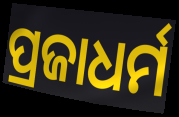
ପ୍ରଜାଧର୍ମ